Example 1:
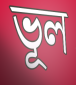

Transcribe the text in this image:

ভূল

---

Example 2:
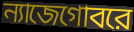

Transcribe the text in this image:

ন্যাজেগোবরে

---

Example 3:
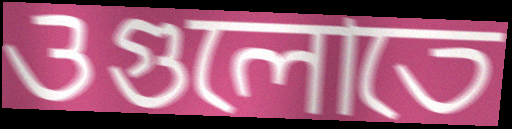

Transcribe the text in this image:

ওগুলোতে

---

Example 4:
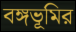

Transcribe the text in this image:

বঙ্গভূমির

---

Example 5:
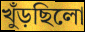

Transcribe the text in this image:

খুঁড়ছিলো